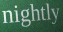
nightly